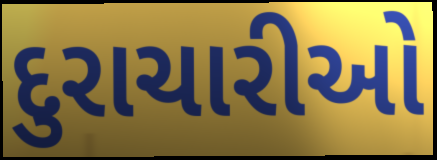
દુરાચારીઓ